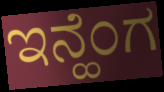
ಇನ್ಹೆಂಗ